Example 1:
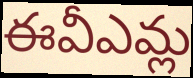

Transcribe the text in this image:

ఈవీఎమ్ల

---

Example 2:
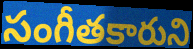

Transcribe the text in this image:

సంగీతకారుని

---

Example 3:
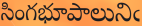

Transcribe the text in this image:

సింగభూపాలునిఁ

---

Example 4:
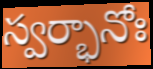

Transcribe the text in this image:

స్వర్భానోః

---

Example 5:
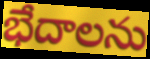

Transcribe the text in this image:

భేదాలను